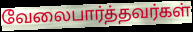
வேலைபார்த்தவர்கள்